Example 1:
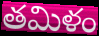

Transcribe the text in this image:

తమిళం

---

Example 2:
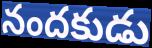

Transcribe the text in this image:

నందకుడు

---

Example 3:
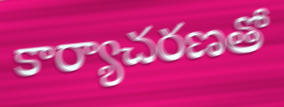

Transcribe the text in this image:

కార్యాచరణతో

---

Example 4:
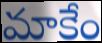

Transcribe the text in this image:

మాకేం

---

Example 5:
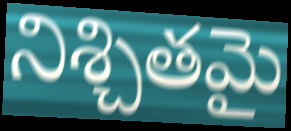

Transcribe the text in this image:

నిశ్చితమై